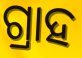
ଗ୍ରାହ